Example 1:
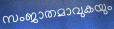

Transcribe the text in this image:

സംജാതമാവുകയും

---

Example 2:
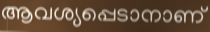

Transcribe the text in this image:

ആവശ്യപ്പെടാനാണ്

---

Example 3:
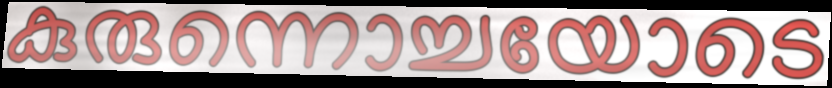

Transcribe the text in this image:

കുരുന്നൊച്ചയോടെ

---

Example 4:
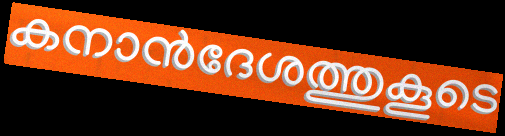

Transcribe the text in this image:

കനാൻദേശത്തുകൂടെ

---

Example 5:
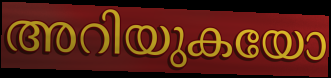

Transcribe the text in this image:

അറിയുകയോ